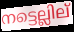
നട്ടെല്ലില്